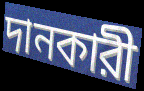
দানকারী